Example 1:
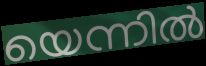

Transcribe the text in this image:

യെന്നിൽ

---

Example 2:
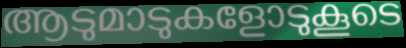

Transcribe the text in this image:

ആടുമാടുകളോടുകൂടെ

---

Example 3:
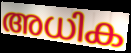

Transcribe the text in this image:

അധിക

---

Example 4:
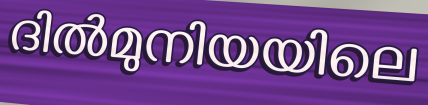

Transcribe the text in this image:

ദിൽമുനിയയിലെ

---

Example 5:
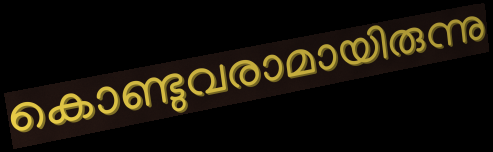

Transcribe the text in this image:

കൊണ്ടുവരാമായിരുന്നു